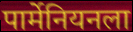
पार्मेनियनला